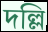
দল্লি